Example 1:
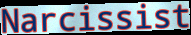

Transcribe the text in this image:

Narcissist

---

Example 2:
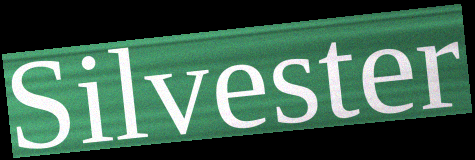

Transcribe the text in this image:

Silvester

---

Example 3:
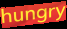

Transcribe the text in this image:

hungry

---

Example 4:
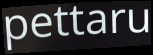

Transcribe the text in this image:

pettaru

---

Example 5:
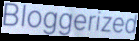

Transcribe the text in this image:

Bloggerized